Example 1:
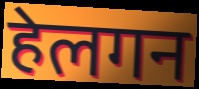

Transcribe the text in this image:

हेलगन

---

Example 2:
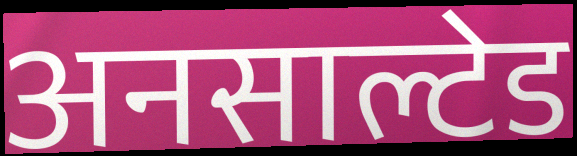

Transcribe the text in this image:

अनसाल्टेड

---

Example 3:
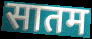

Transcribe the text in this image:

सातम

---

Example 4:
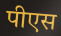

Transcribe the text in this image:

पीएस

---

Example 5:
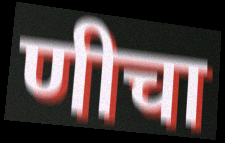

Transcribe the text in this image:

णीचा